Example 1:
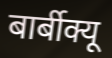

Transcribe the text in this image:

बार्बीक्यू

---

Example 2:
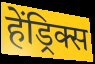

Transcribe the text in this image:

हेंड्रिक्स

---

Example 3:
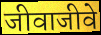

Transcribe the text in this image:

जीवाजीवे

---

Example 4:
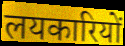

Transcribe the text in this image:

लयकारियों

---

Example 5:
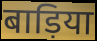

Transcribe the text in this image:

बाड़िया